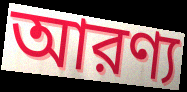
আরণ্য